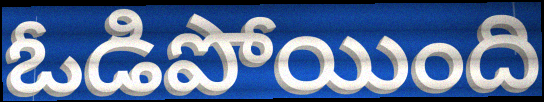
ఓడిపోయింది